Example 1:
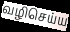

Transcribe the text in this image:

வழிசெய்ய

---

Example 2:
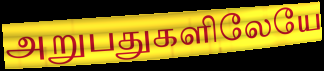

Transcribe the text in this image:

அறுபதுகளிலேயே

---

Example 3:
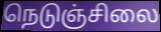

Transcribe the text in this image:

நெடுஞ்சிலை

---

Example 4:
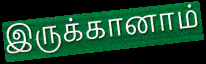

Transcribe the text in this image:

இருக்கானாம்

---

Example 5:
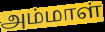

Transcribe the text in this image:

அம்மாள்